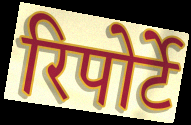
रिपोर्टे